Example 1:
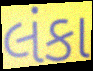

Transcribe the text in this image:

લંકા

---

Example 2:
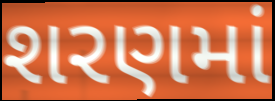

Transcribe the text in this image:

શરણમાં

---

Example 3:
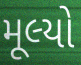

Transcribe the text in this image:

મૂલ્યો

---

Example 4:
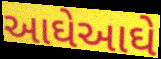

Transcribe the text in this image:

આઘેઆઘે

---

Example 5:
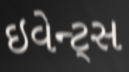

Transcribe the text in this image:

ઇવેન્ટ્સ